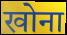
खोना